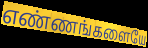
எண்ணங்களையே